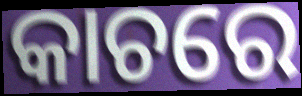
କାଚରେ